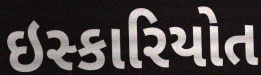
ઇસ્કારિયોત